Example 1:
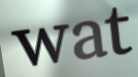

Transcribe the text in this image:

wat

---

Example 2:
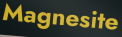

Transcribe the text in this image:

Magnesite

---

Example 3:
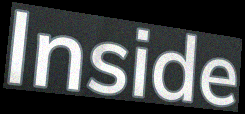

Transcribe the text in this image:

Inside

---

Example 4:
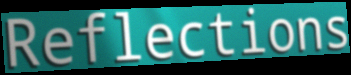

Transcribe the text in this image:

Reflections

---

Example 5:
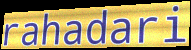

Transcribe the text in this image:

rahadari